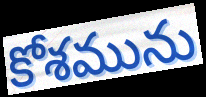
కోశమును